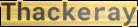
Thackeray